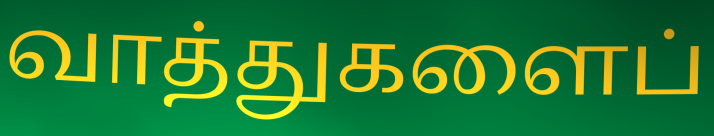
வாத்துகளைப்